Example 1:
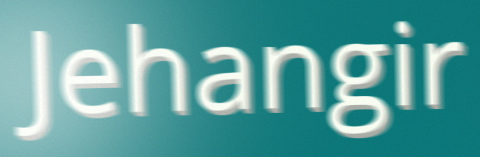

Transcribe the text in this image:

Jehangir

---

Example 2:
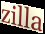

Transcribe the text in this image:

zilla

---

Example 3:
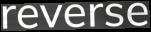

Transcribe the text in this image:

reverse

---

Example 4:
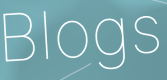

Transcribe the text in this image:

Blogs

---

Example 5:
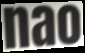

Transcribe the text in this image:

nao